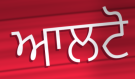
ਆਲਟੋ